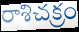
రాశిచక్రం